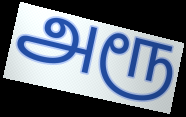
அரூ